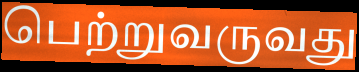
பெற்றுவருவது